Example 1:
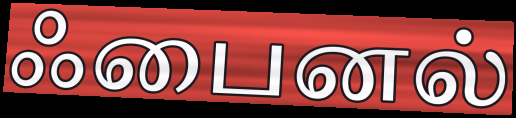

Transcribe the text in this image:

ஃபைனல்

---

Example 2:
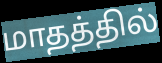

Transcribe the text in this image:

மாதத்தில்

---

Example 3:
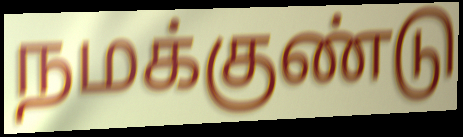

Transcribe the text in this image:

நமக்குண்டு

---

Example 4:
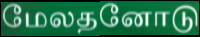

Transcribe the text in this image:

மேலதனோடு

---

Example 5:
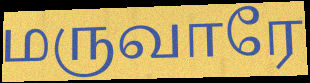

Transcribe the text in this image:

மருவாரே